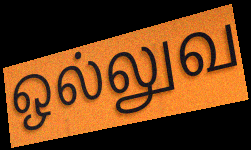
ஒல்லுவ